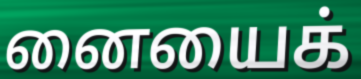
னையைக்